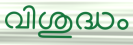
വിശുദ്ധം